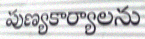
పుణ్యకార్యాలను